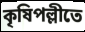
কৃষিপল্লীতে